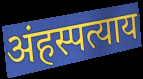
अंहस्पत्याय